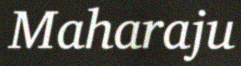
Maharaju